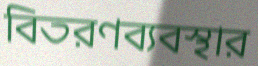
বিতরণব্যবস্থার